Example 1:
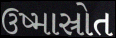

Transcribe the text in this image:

ઉષ્માસ્રોત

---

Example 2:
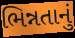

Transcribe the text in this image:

ભિન્નતાનું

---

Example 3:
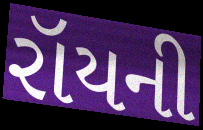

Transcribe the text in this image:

રૉયની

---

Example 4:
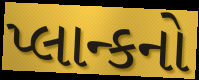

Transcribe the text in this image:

પ્લાન્કનો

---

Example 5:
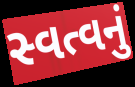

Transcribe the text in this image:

સ્વત્વનું